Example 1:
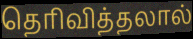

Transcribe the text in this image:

தெரிவித்தலால்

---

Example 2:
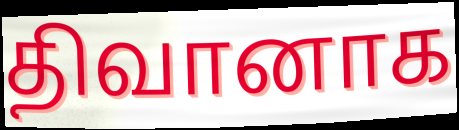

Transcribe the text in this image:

திவானாக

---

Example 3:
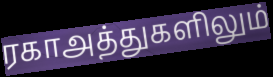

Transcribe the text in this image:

ரகாஅத்துகளிலும்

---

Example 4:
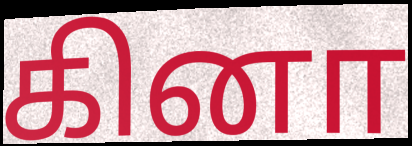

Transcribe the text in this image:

கினா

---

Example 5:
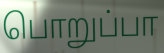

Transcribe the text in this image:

பொறுப்பா